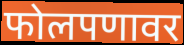
फोलपणावर